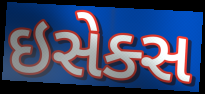
ઇસેક્સ